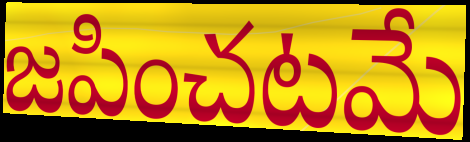
జపించటమే